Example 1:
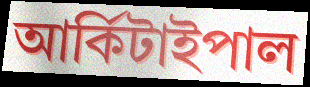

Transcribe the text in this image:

আৰ্কিটাইপাল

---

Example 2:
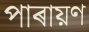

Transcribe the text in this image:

পাৰায়ণ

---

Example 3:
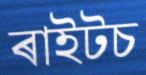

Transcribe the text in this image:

ৰাইটচ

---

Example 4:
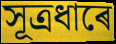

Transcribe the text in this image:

সূত্ৰধাৰে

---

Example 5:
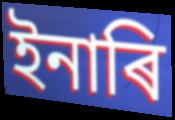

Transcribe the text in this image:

ইনাৰি